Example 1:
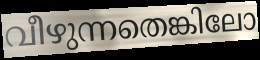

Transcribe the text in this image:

വീഴുന്നതെങ്കിലോ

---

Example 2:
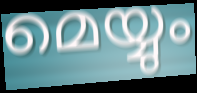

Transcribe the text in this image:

മെയ്യും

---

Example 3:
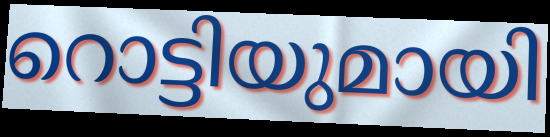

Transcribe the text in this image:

റൊട്ടിയുമായി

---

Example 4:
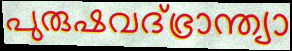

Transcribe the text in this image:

പുരുഷവദ്ഭ്രാന്ത്യാ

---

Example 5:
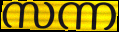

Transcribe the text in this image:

സന്ന